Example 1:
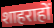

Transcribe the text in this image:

शाहराहों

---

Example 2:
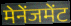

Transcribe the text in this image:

मेनेंजमेंट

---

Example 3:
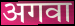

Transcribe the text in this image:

अगवा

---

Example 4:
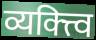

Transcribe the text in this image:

व्यक्त्त्वि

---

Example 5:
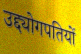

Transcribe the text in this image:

उद्द्योगपतियों